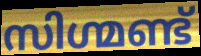
സിഗ്മണ്ട്